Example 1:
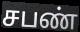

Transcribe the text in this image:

சபண்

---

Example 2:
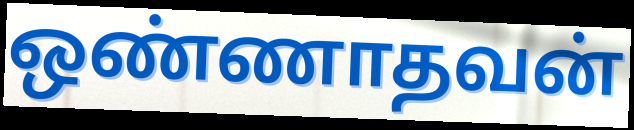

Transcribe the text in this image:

ஒண்ணாதவன்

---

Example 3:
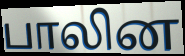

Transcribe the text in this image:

பாலின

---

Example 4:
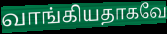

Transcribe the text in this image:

வாங்கியதாகவே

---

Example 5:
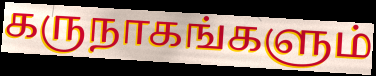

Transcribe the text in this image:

கருநாகங்களும்